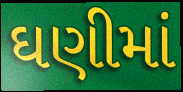
ઘણીમાં